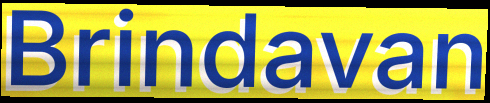
Brindavan